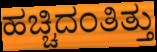
ಹಚ್ಚಿದಂತಿತ್ತು